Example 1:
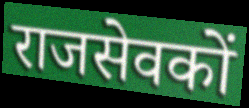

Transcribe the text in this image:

राजसेवकों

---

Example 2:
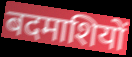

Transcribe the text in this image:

बदमाशियों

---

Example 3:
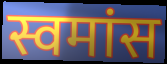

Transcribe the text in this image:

स्वमांस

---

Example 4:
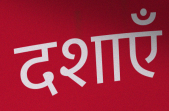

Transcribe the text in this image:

दशाएँ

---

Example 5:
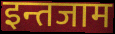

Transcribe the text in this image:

इन्तजाम